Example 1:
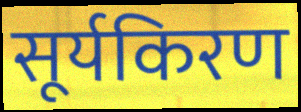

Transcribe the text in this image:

सूर्यकिरण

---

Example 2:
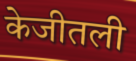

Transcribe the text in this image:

केजीतली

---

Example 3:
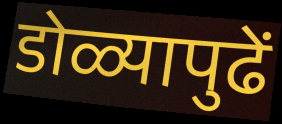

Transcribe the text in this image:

डोळ्यापुढें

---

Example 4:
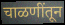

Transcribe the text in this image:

चाळणींतून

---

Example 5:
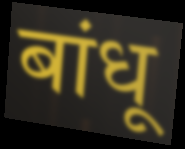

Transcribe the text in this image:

बांधू